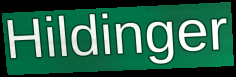
Hildinger